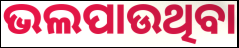
ଭଲପାଉଥିବା